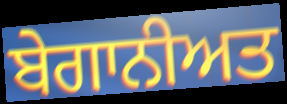
ਬੇਗਾਨੀਅਤ